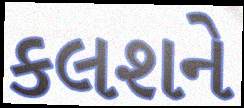
કલશને